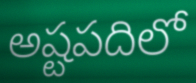
అష్టపదిలో